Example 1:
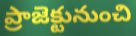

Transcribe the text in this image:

ప్రాజెక్టునుంచి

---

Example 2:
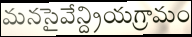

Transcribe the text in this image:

మనసైవేన్ద్రియగ్రామం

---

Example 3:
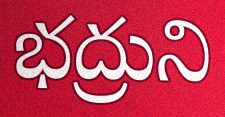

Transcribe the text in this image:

భద్రుని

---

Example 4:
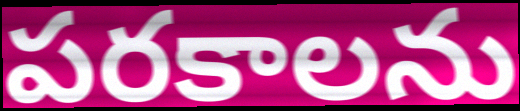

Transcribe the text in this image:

పరకాలను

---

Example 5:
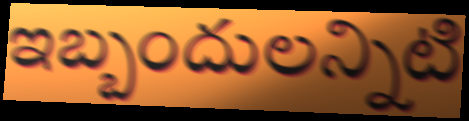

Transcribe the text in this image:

ఇబ్బందులన్నిటి